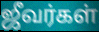
ஜீவர்கள்